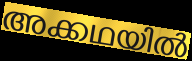
അക്കഥയിൽ